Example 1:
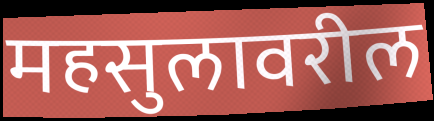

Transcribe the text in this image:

महसुलावरील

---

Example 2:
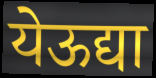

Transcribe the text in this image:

येऊद्या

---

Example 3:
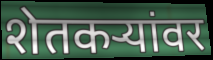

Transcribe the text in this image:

शेतकऱ्यांवर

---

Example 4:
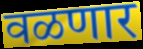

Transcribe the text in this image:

वळणार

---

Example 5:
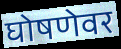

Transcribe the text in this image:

घोषणेवर